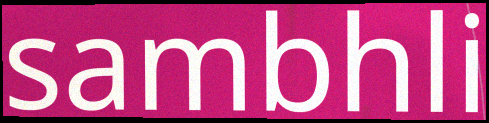
sambhli